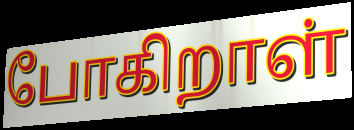
போகிறாள்